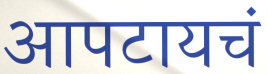
आपटायचं